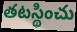
తటస్థించు